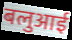
बलुआई